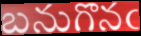
బనుగొనఁ